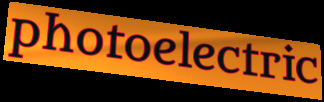
photoelectric